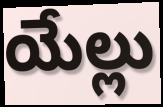
యేల్లు